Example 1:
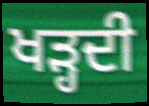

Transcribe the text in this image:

ਖੜ੍ਹਦੀ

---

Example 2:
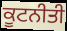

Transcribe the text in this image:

ਕੂਟਨੀਤੀ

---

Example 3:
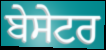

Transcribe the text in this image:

ਬੇਸੇਟਰ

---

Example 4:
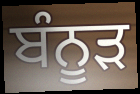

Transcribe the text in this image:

ਬੰਨੂੜ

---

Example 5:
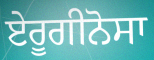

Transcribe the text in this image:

ਏਰੂਗੀਨੋਸਾ